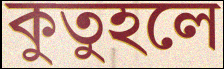
কুতুহলে